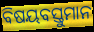
ବିଷୟବସ୍ତୁମାନ